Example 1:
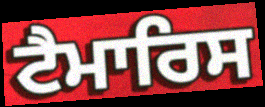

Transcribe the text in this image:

ਟੈਮਾਰਿਸ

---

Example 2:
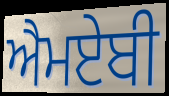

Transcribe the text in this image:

ਐਮਏਬੀ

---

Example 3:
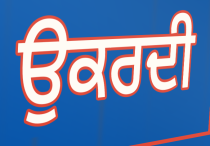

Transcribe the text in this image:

ਉਕਰਦੀ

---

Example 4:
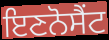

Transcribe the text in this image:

ਇਣਨੋਸੈਂਟ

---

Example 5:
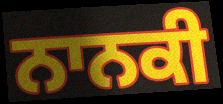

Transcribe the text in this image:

ਨਾਨਕੀ